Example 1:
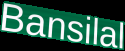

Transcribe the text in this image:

Bansilal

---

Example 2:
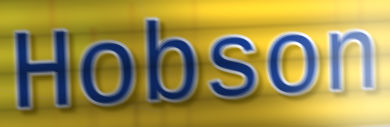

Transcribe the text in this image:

Hobson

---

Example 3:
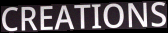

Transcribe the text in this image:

CREATIONS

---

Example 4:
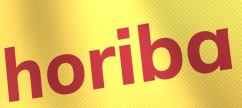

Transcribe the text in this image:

horiba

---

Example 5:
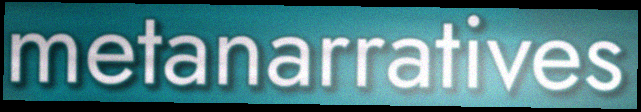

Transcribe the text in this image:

metanarratives